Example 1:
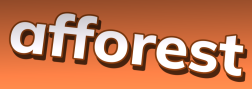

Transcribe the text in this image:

afforest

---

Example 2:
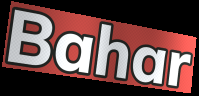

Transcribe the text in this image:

Bahar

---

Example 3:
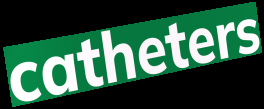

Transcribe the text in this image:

catheters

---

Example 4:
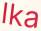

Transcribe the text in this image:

Ika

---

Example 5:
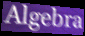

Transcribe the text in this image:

Algebra